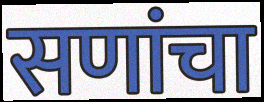
सणांचा